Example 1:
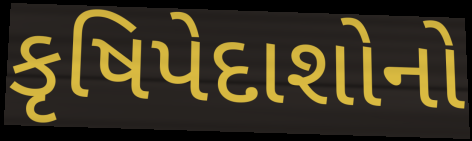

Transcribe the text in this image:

કૃષિપેદાશોનો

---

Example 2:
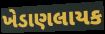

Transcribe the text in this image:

ખેડાણલાયક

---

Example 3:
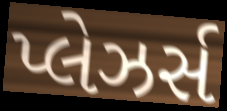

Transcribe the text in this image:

પ્લેઝર્સ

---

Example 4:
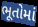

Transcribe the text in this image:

ભૂતોમાં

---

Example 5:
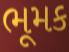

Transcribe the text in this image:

ભૂમક